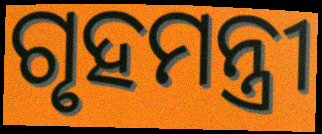
ଗୃହମନ୍ତ୍ରୀ